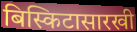
बिस्किटासारखी